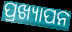
ପ୍ରଖ୍ୟାପନ